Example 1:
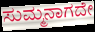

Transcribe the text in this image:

ಸುಮ್ಮನಾಗದೇ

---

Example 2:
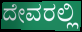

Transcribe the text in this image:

ದೇವರಲ್ಲಿ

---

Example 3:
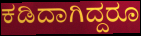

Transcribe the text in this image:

ಕಡಿದಾಗಿದ್ದರೂ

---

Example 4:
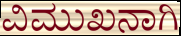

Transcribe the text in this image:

ವಿಮುಖನಾಗಿ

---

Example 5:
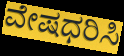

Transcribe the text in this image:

ವೇಷಧರಿಸಿ